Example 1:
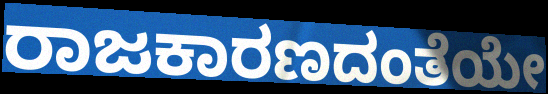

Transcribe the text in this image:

ರಾಜಕಾರಣದಂತೆಯೇ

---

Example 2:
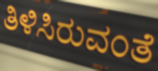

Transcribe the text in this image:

ತಿಳಿಸಿರುವಂತೆ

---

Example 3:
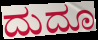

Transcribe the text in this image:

ದುದೂ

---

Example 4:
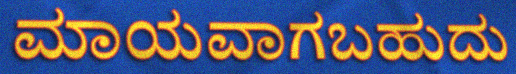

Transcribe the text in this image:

ಮಾಯವಾಗಬಹುದು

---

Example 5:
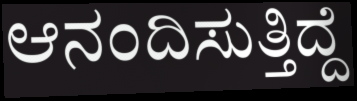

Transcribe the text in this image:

ಆನಂದಿಸುತ್ತಿದ್ದೆ